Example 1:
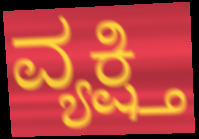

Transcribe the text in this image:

ವ್ಯಕ್ಷ್ತಿ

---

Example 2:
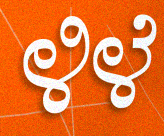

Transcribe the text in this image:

ಳಿಳೆ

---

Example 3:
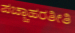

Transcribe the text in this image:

ಪಚ್ಚಾಹರತೀತಿ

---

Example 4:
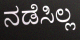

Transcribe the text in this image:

ನಡೆಸಿಲ್ಲ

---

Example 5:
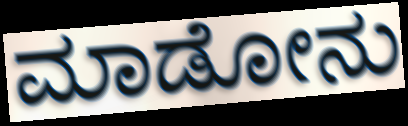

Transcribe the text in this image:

ಮಾಡೋನು